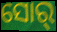
ସୋର୍